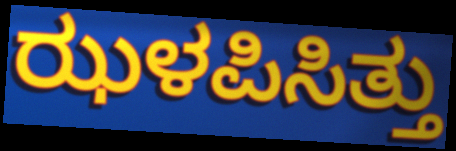
ಝಳಪಿಸಿತ್ತು